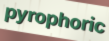
pyrophoric